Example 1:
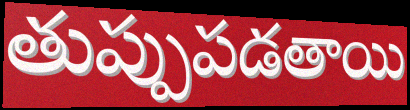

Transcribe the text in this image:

తుప్పుపడతాయి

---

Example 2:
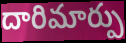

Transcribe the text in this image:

దారిమార్పు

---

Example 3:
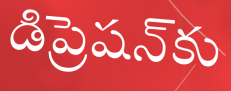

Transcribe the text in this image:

డిప్రెషన్‌కు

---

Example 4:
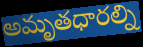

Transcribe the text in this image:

అమృతధారల్ని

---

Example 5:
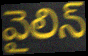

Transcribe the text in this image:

వైలిన్